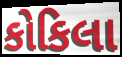
કોકિલા